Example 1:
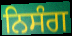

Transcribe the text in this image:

ਨਿਸੰਗ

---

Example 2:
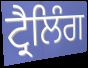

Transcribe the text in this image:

ਟ੍ਰੈਲਿੰਗ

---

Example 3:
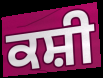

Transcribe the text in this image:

ਕਸ਼ੀ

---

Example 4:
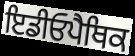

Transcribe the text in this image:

ਇਡੀਓਪੈਥਿਕ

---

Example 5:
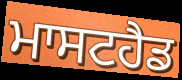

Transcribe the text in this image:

ਮਾਸਟਹੈਡ